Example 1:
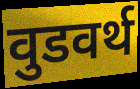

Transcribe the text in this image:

वुडवर्थ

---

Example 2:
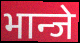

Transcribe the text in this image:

भान्जे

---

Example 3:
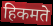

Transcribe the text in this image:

हिकमते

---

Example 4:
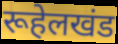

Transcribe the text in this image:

रूहेलखंड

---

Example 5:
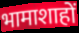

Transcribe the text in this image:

भामाशाहों